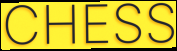
CHESS